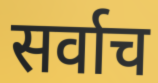
सर्वाच